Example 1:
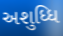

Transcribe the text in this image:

અશુધ્ધિ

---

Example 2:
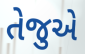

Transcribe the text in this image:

તેજુએ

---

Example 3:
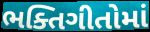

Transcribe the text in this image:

ભક્તિગીતોમાં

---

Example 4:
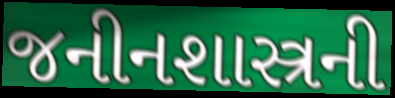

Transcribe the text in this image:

જનીનશાસ્ત્રની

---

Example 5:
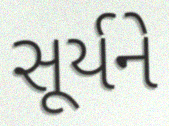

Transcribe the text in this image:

સૂર્યને